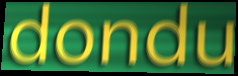
dondu